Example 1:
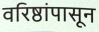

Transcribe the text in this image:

वरिष्ठांपासून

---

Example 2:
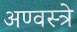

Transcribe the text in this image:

अण्वस्त्रे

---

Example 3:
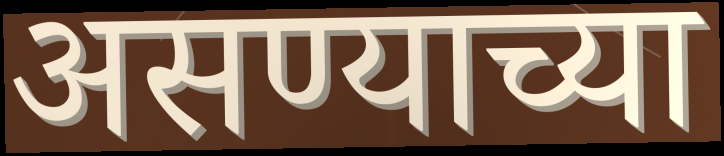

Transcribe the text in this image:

असण्याच्या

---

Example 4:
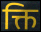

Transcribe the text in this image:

क्ति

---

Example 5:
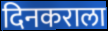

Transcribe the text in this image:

दिनकराला